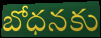
బోధనకు